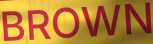
BROWN